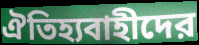
ঐতিহ্যবাহীদের